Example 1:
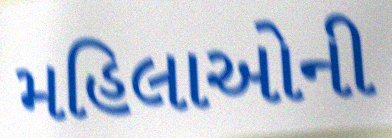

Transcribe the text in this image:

મહિલાઓની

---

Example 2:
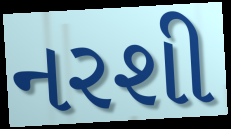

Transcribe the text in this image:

નરશી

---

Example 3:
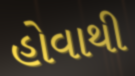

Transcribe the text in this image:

હોવાથી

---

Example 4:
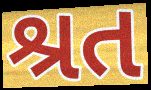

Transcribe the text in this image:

શ્રત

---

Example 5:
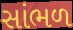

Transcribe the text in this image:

સાંભળ